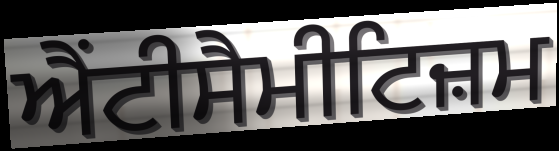
ਐਂਟੀਸੈਮੀਟਿਜ਼ਮ